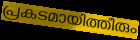
പ്രകടമായിത്തീരും